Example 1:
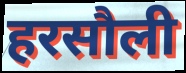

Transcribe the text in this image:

हरसौली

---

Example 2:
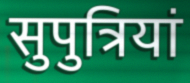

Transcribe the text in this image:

सुपुत्रियां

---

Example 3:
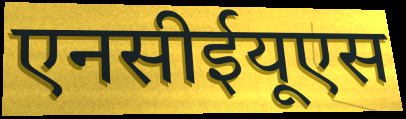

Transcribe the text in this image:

एनसीईयूएस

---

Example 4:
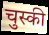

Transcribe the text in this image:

चुस्की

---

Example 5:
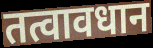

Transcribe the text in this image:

तत्वावधान